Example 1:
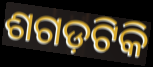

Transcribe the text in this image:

ଶଗଡ଼ଟିକି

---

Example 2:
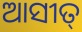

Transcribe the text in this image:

ଆସୀତ୍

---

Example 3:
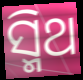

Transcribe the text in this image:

ସ୍ମିଥ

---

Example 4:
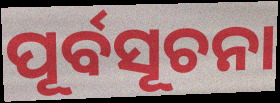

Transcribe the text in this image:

ପୂର୍ବସୂଚନା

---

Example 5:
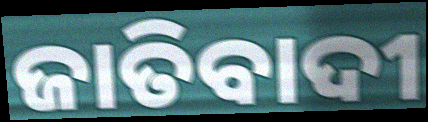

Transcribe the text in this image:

ଜାତିବାଦୀ